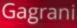
Gagrani